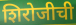
शिरोजीची